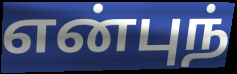
என்புந்